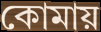
কোমায়